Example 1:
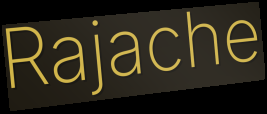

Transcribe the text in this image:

Rajache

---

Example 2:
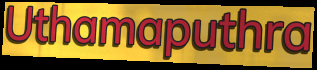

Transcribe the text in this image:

Uthamaputhra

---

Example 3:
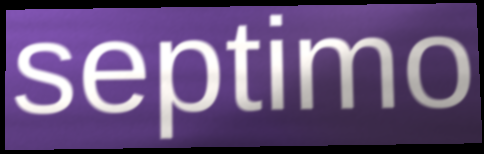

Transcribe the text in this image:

septimo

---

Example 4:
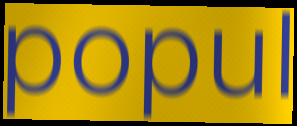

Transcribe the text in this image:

popul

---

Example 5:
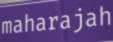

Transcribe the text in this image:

maharajah